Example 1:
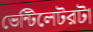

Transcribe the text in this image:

ভেন্টিলেটরটা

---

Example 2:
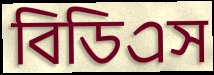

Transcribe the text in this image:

বিডিএস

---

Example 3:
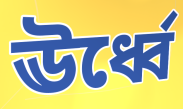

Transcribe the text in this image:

ঊর্ধ্বে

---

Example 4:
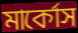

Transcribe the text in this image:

মার্কোস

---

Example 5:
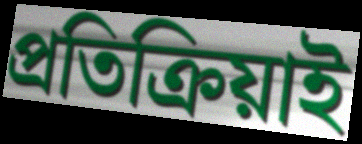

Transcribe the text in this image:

প্রতিক্রিয়াই